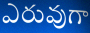
ఎరువుగా